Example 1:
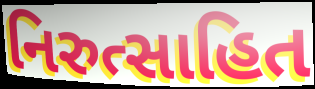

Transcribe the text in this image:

નિરુત્સાહિત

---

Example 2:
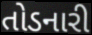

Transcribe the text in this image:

તોડનારી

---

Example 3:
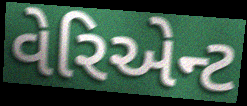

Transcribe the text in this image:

વેરિએન્ટ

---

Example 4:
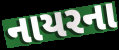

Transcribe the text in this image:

નાયરના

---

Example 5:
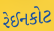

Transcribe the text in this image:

રેઈનકોટ